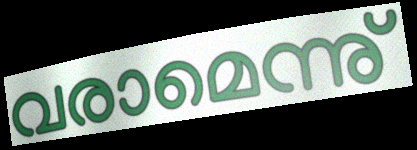
വരാമെന്നു്